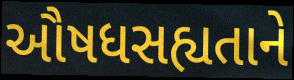
ઔષધસહ્યતાને